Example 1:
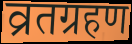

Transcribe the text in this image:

व्रतग्रहण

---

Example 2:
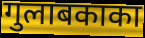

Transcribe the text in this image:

गुलाबकाका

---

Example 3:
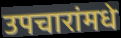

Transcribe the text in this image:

उपचारांमधे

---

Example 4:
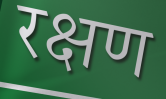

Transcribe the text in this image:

रक्षण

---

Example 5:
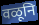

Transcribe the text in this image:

वळूनि